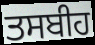
ਤਸਬੀਹ